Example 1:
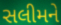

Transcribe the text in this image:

સલીમને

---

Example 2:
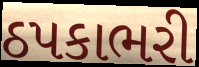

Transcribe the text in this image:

ઠપકાભરી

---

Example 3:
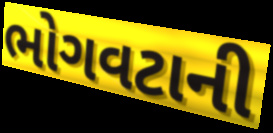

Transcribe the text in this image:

ભોગવટાની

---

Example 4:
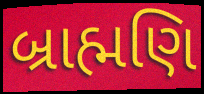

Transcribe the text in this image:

બ્રાહ્મણિ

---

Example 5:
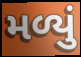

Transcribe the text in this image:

મળ્યું